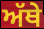
ਅੱਥੇ